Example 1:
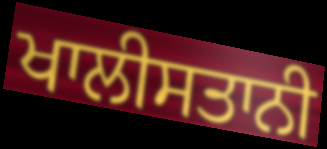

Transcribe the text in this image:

ਖਾਲੀਸਤਾਨੀ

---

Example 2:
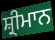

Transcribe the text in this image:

ਸ਼੍ਰੀਮਾਨ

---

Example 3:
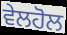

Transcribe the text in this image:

ਵੇਲਹੋਲ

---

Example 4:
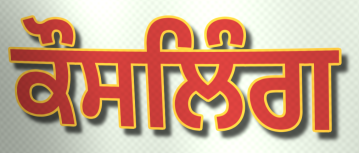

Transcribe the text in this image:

ਕੌਸਲਿੰਗ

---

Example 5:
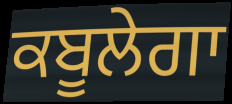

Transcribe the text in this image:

ਕਬੂਲੇਗਾ